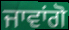
ਜਾਵਾਂਗੋ